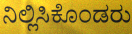
ನಿಲ್ಲಿಸಿಕೊಂಡರು